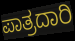
ಪಾತ್ರದಾರಿ